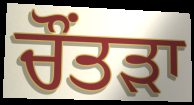
ਚੌਂਤੜਾ